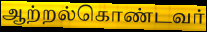
ஆற்றல்கொண்டவர்